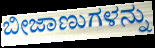
ಬೀಜಾಣುಗಳನ್ನು